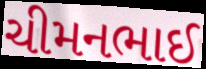
ચીમનભાઈ